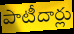
పాటీదార్లు